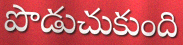
పొడుచుకుంది